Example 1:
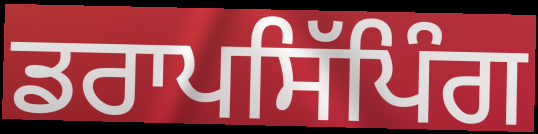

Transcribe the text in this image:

ਡਰਾਪਸਿੱਪਿੰਗ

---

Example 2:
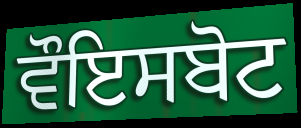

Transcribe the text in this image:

ਵੌਇਸਬੋਟ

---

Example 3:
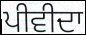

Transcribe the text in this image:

ਪੀਵੀਦਾ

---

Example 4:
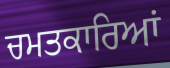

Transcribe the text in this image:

ਚਮਤਕਾਰਿਆਂ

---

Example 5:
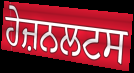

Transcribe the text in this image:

ਹੇਜ਼ਨਲਟਸ